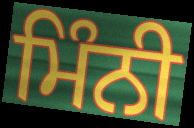
ਮਿੰਨੀ